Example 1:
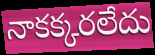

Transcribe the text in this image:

నాకక్కరలేదు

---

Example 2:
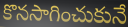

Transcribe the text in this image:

కొనసాగించుకునే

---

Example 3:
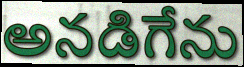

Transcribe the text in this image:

అనడిగేను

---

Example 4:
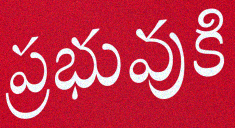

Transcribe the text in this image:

ప్రభువుకి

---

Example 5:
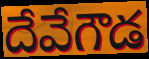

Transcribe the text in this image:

దేవేగౌడ